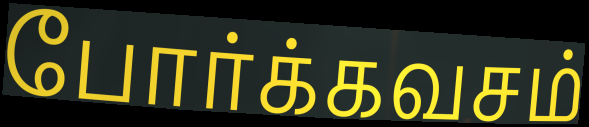
போர்க்கவசம்